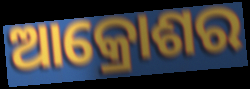
ଆକ୍ରୋଶର